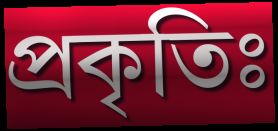
প্রকৃতিঃ